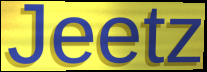
Jeetz